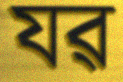
যৱ